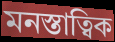
মনস্তাত্বিক